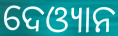
ଦେଓ୍ୟାନ